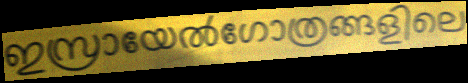
ഇസ്രായേൽഗോത്രങ്ങളിലെ